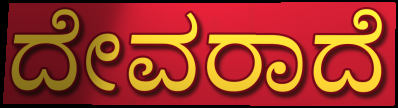
ದೇವರಾದೆ